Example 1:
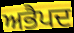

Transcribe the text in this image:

ਅਭੈਪਦ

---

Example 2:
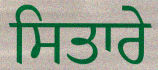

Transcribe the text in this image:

ਸਿਤਾਰੇ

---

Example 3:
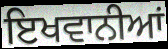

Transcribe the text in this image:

ਇਖਵਾਨੀਆਂ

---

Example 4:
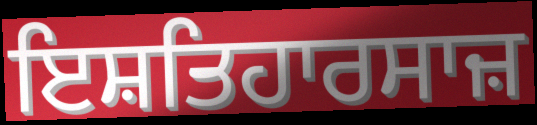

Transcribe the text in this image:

ਇਸ਼ਤਿਹਾਰਸਾਜ਼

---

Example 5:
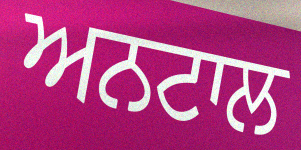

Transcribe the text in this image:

ਅਨਟਾਲ